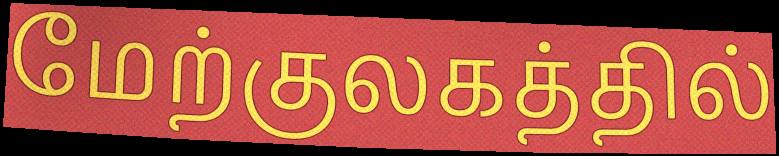
மேற்குலகத்தில்